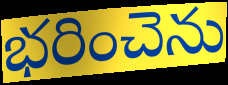
భరించెను